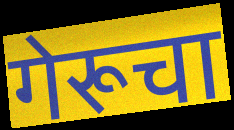
गेरूचा